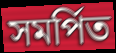
সমৰ্পিত